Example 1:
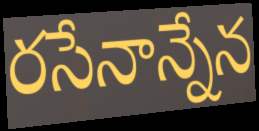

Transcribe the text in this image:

రసేనాన్నేన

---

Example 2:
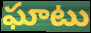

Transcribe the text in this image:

ఘాటు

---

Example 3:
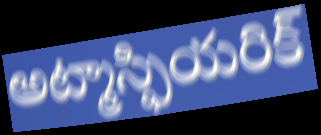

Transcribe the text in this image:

అట్మాస్ఫియరిక్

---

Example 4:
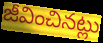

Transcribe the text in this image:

జీవించినట్లు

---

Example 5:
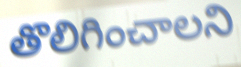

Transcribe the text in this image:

తొలిగించాలని